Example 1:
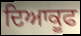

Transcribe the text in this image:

ਦਿਆਕੂਫ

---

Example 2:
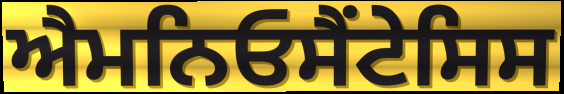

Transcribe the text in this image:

ਐਮਨਿਓਸੈਂਟੇਸਿਸ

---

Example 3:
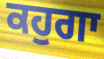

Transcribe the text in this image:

ਕਹੁਗਾ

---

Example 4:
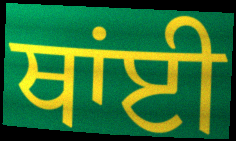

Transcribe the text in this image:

ਥਾਂਈ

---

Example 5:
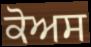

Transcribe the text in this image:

ਕੋਅਸ